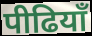
पीढियाँ